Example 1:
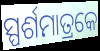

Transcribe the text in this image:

ସ୍ପର୍ଶମାତ୍ରକେ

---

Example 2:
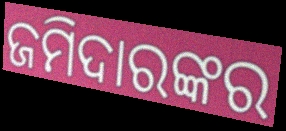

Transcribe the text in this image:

ଜମିଦାରଙ୍କର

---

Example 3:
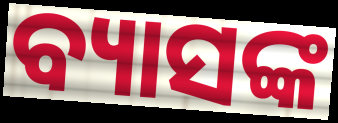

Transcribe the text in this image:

ବ୍ୟାସଙ୍କ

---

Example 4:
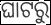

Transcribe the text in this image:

ଘାଟରୁ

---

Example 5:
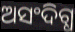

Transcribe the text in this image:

ଅସଂଦିଗ୍ଧ